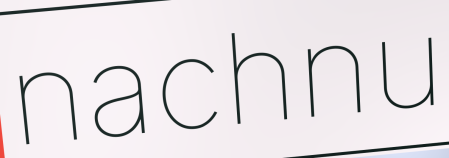
nachnu